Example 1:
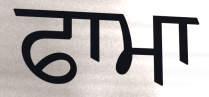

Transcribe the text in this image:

ਫਾਮਾ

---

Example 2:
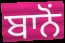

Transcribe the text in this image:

ਬਾਨੋਂ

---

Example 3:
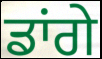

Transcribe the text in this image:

ਡਾਂਗੇ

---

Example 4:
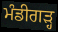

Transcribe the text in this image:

ਮੰਡੀਗੜ੍ਹ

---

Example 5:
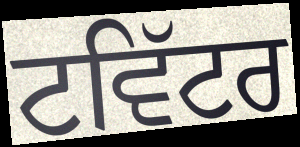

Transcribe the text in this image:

ਟਵਿੱਟਰ